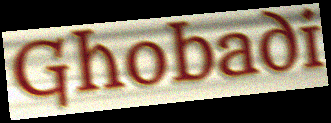
Ghobadi